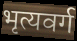
भृत्यवर्ग